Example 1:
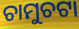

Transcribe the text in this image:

ଚାମୁଚଟା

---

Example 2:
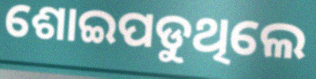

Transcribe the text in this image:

ଶୋଇପଡୁଥିଲେ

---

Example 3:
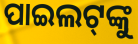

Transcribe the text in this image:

ପାଇଲଟ୍‌ଙ୍କୁ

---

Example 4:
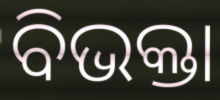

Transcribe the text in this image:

ବିଭକ୍ତା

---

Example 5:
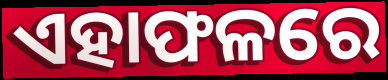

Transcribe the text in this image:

ଏହାଫଳରେ